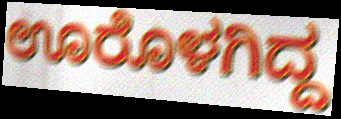
ಊರೊಳಗಿದ್ದ